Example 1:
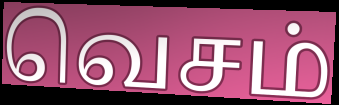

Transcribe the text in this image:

வெசம்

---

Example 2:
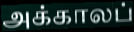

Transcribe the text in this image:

அக்காலப்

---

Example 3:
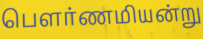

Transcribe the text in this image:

பெளர்ணமியன்று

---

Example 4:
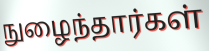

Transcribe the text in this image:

நுழைந்தார்கள்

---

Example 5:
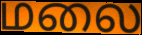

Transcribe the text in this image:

மலை